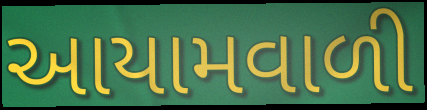
આયામવાળી